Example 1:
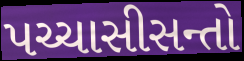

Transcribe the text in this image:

પચ્ચાસીસન્તો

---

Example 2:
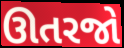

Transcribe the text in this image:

ઊતરજો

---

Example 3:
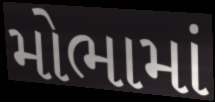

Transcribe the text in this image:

મોભામાં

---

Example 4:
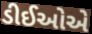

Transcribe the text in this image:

ડીઈઓએ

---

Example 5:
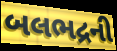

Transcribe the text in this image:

બલભદ્રની